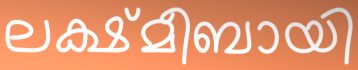
ലക്ഷ്മീബായി